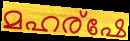
മഹര്ഷേ